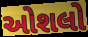
ઓશલો